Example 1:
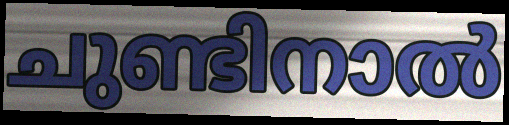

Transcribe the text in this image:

ചുണ്ടിനാൽ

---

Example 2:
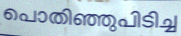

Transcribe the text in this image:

പൊതിഞ്ഞുപിടിച്ച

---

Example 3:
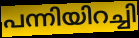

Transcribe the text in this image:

പന്നിയിറച്ചി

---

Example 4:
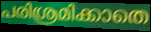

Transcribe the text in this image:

പരിശ്രമിക്കാതെ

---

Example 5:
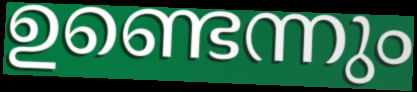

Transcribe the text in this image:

ഉണ്ടെന്നും